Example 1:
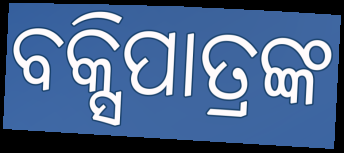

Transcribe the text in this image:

ବକ୍ସିପାତ୍ରଙ୍କ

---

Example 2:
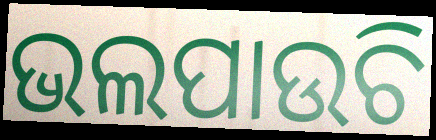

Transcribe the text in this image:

ଭଲପାଉଚି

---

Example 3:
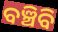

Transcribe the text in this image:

ବଞ୍ଚିବି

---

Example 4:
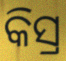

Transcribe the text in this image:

କିସ୍ର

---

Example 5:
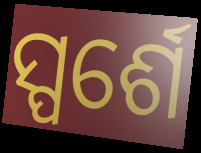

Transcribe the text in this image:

ସ୍ପର୍ଶେ